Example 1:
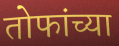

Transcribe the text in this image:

तोफांच्या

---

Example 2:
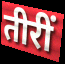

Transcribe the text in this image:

तीरीं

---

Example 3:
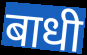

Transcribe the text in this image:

बाधी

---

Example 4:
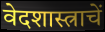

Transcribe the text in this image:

वेदशास्त्राचें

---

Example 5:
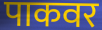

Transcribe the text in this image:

पाकवर